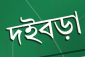
দইবড়া